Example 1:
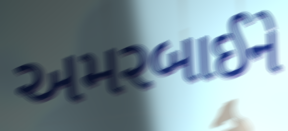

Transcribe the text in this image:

અમરબાઈને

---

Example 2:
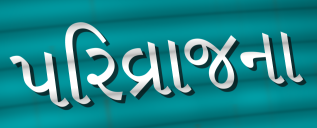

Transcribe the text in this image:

પરિવ્રાજના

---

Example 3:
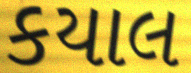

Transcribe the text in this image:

કયાલ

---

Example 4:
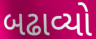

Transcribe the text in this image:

બઢાવ્યો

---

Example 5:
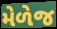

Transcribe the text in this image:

મેળેજ